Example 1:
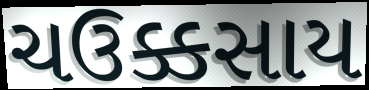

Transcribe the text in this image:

ચઉક્કસાય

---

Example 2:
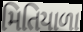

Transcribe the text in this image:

મિતિયાળા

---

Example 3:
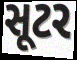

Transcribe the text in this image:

સૂટર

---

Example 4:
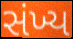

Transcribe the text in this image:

સંખ્ય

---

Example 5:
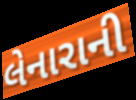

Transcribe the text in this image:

લેનારાની